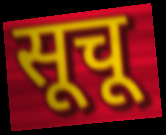
सूचू